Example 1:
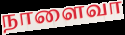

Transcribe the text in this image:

நாளைவா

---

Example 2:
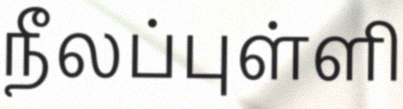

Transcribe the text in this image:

நீலப்புள்ளி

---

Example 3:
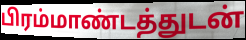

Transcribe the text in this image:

பிரம்மாண்டத்துடன்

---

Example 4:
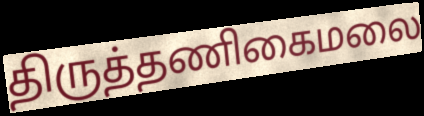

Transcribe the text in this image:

திருத்தணிகைமலை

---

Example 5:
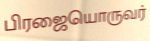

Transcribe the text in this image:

பிரஜையொருவர்